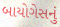
બાયોગેસનું